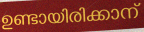
ഉണ്ടായിരിക്കാന്